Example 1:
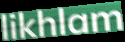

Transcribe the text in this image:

likhlam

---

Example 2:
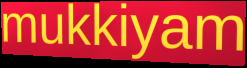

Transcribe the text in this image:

mukkiyam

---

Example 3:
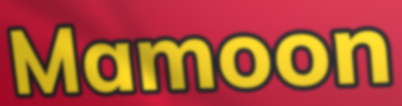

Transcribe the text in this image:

Mamoon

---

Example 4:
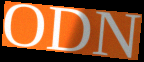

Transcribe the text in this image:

ODN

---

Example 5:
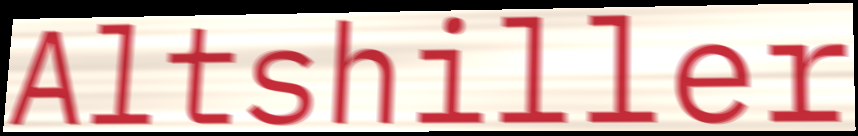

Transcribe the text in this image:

Altshiller